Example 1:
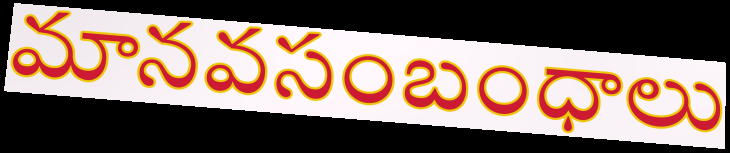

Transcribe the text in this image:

మానవసంబంధాలు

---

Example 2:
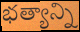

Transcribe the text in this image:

భత్యాన్ని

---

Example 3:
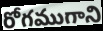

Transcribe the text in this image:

రోగముగాని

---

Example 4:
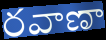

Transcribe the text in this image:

రవాణా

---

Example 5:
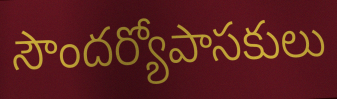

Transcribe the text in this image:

సౌందర్యోపాసకులు